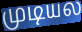
முடியல